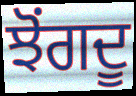
ਝੋਂਗਦੂ